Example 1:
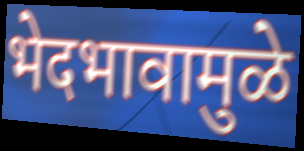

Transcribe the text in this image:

भेदभावामुळे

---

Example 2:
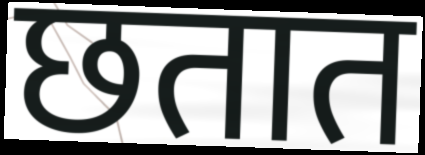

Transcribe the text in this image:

छतात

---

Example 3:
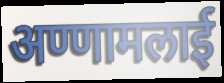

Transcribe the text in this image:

अण्णामलाई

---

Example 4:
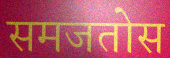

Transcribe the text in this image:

समजतोस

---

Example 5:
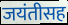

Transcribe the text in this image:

जयंतीसह